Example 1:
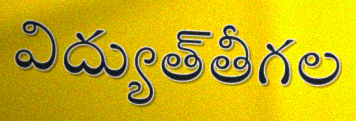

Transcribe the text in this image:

విద్యుత్‌తీగల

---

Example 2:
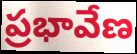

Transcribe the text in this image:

ప్రభావేణ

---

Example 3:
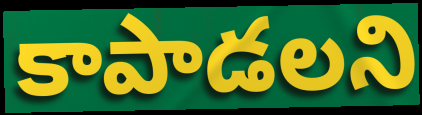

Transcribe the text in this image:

కాపాడలని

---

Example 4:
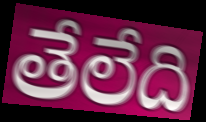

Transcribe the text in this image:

తేలేది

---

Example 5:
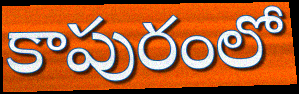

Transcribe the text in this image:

కాపురంలో